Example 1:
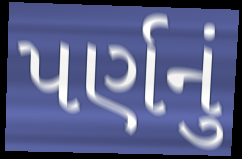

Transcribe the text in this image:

પર્ણનું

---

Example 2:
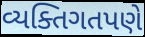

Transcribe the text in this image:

વ્યક્તિગતપણે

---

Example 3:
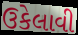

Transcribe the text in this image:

ઉકેલાવી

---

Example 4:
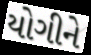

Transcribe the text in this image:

યોગીને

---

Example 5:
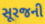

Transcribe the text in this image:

સૂરજની